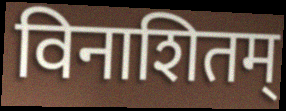
विनाशितम्